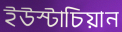
ইউস্টাচিয়ান